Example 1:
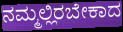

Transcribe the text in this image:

ನಮ್ಮಲ್ಲಿರಬೇಕಾದ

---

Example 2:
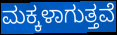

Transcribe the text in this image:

ಮಕ್ಕಳಾಗುತ್ತವೆ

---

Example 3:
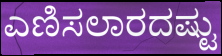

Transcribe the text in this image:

ಎಣಿಸಲಾರದಷ್ಟು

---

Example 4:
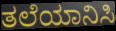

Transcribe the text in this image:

ತಲೆಯಾನಿಸಿ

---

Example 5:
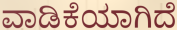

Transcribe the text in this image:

ವಾಡಿಕೆಯಾಗಿದೆ